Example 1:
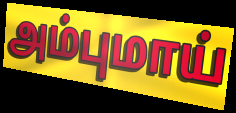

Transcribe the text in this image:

அம்புமாய்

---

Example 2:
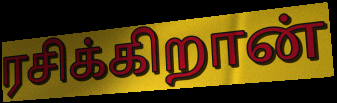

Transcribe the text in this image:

ரசிக்கிறான்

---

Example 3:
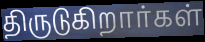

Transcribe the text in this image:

திருடுகிறார்கள்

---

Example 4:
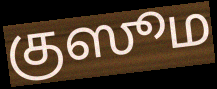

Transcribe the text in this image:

குஸூம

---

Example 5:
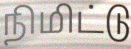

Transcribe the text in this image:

நிமிட்டு